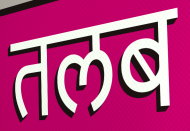
तलब